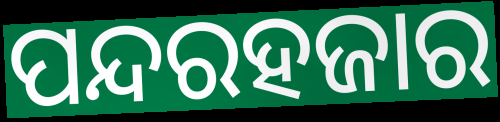
ପନ୍ଦରହଜାର